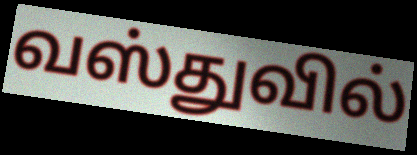
வஸ்துவில்